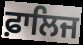
ਫ਼ਾਲਿਜ